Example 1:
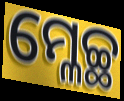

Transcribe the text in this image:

ମ୍ଳେଚ୍ଛ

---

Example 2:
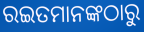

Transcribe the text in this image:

ରଇତମାନଙ୍କଠାରୁ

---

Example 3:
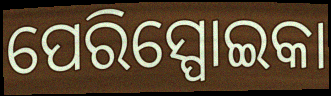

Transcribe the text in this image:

ପେରିସ୍ପୋଇକା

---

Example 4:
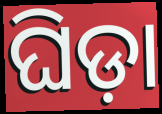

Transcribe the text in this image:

ଘିଡ଼ା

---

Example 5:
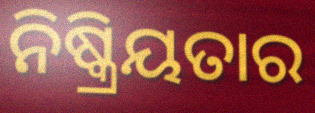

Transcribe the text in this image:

ନିଷ୍କ୍ରିୟତାର